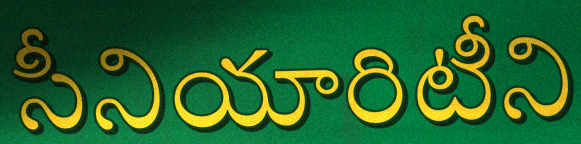
సీనియారిటీని